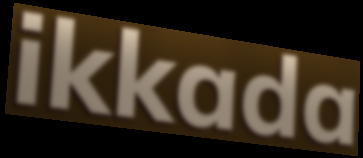
ikkada